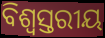
ବିଶ୍ବସ୍ତରୀୟ